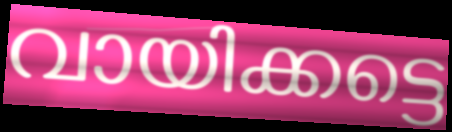
വായിക്കട്ടെ